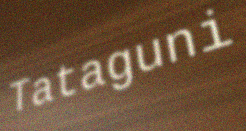
Tataguni